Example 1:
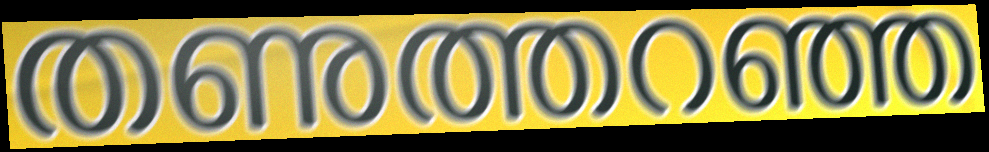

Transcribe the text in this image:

തണുത്തറഞ്ഞ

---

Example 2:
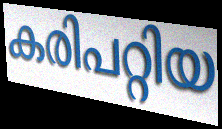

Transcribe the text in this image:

കരിപറ്റിയ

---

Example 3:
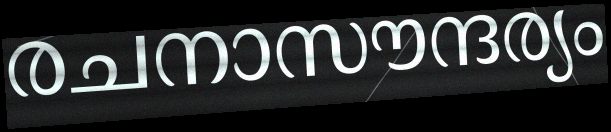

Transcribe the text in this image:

രചനാസൗന്ദര്യം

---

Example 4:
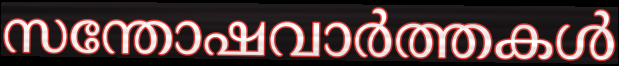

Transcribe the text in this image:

സന്തോഷവാർത്തകൾ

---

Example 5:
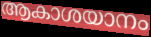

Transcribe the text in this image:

ആകാശയാനം